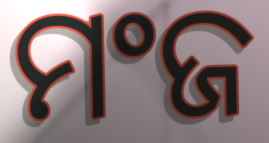
ମଂଜ